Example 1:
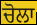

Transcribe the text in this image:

ਚੋਲਾ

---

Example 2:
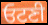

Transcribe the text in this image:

ਓਟਣੀ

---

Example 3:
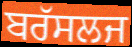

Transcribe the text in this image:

ਬਰੱਸਲਜ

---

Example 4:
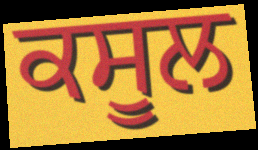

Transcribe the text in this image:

ਕਸੂਲ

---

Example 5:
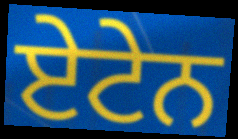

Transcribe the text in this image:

ਏਟੇਨ